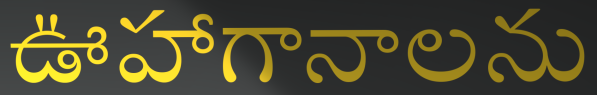
ఊహాగానాలను